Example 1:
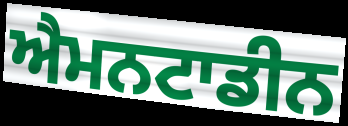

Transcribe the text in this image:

ਐਮਨਟਾਡੀਨ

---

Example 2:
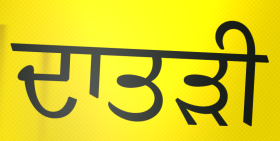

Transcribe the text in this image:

ਦਾਤੜੀ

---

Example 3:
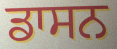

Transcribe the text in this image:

ਡਾਸਨ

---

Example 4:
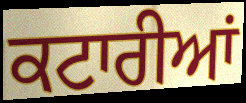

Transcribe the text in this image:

ਕਟਾਰੀਆਂ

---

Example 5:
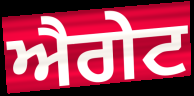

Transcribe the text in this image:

ਐਗੇਟ